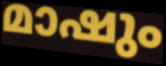
മാഷും